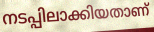
നടപ്പിലാക്കിയതാണ്